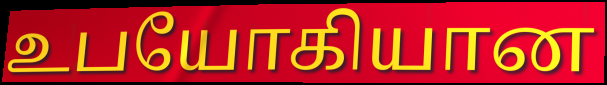
உபயோகியான